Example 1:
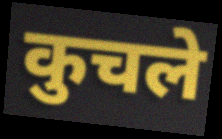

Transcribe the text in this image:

कुचले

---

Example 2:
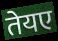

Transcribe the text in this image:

तेयए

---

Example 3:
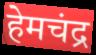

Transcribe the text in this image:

हेमचंद्र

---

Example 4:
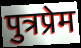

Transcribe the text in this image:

पुत्रप्रेम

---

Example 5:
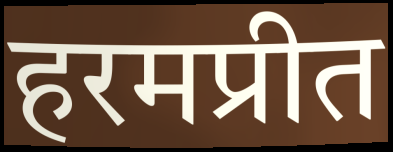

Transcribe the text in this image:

हरमप्रीत